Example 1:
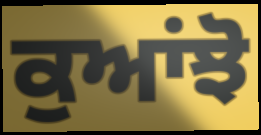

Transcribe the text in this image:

ਕੁਆਂਝੋ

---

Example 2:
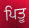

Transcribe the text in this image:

ਪਿਤੂ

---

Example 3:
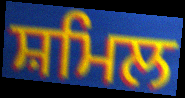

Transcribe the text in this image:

ਸ਼ਮਿਲ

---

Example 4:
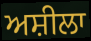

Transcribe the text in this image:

ਅਸ਼ੀਲਾ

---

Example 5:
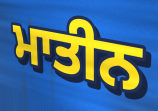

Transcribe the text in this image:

ਮਾਤੀਨ